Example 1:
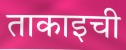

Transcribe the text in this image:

ताकाइची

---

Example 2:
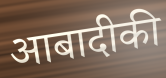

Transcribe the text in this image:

आबादीकी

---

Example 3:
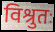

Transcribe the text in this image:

विश्रुतः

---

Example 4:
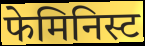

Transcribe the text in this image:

फेमिनिस्ट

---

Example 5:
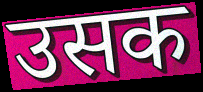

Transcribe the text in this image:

उसक